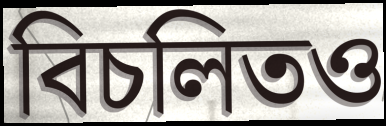
বিচলিতও